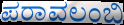
ಪರಾವಲಂಬಿ